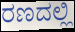
ರಣದಲ್ಲಿ